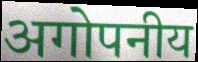
अगोपनीय